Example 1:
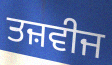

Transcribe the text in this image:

ਤਜ਼ਵੀਜ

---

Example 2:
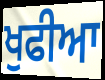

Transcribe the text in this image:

ਖੁਫੀਆ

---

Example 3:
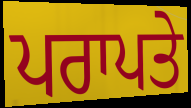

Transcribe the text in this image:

ਪਰਾਪਤੇ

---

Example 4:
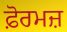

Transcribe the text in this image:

ਫ਼ੋਰਮਜ਼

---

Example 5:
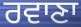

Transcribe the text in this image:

ਰਵਾਣਾ